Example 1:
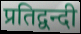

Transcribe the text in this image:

प्रतिद्वन्दी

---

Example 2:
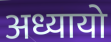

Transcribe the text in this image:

अध्यायो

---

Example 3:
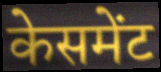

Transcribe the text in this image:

केसमेंट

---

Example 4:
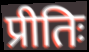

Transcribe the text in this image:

प्रीतिः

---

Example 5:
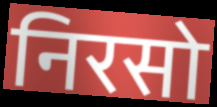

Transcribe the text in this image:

निरसो